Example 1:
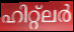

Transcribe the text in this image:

ഹിറ്റ്ലർ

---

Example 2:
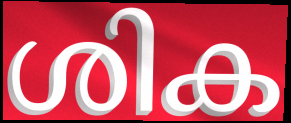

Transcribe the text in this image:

ശിക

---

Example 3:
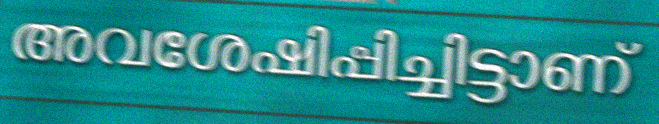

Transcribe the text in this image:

അവശേഷിപ്പിച്ചിട്ടാണ്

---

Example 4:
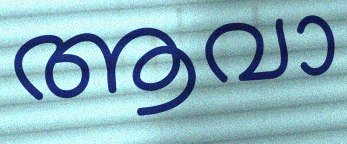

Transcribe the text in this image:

ആവാ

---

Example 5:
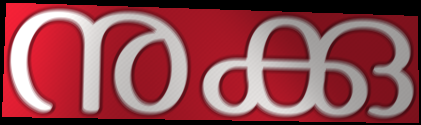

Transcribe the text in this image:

നുക്കു